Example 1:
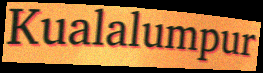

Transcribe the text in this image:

Kualalumpur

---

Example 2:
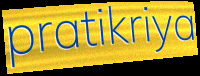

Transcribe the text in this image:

pratikriya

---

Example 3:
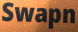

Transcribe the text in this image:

Swapn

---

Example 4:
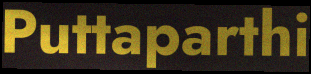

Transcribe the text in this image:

Puttaparthi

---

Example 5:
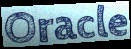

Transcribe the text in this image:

Oracle